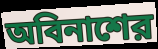
অবিনাশের